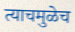
त्याचमुळेच